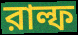
রাল্ফ